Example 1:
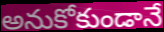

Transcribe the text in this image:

అనుకోకుండానే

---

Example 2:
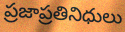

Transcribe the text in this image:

ప్రజాప్రతినిధులు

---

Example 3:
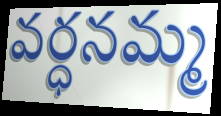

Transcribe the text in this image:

వర్ధనమ్మ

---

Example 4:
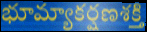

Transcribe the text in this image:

భూమ్యాకర్షణశక్తి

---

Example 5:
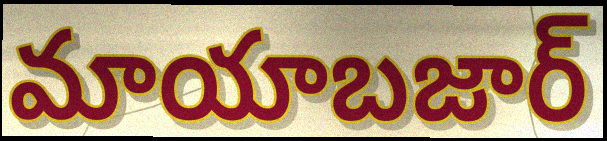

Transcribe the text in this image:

మాయాబజార్